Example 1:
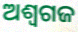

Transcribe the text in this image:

ଅଶ୍ୱଗଜ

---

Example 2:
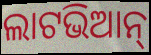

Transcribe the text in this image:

ଲାଟଭିଆନ୍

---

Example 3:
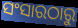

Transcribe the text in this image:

ସଂସାରଠାରୁ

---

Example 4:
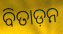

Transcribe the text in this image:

ବିତାଡ଼ନ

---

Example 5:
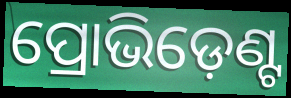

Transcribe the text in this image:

ପ୍ରୋଭିଡ଼େଣ୍ଟ